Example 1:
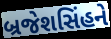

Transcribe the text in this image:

બ્રજેશસિંહને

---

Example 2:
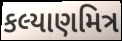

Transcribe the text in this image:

કલ્યાણમિત્ર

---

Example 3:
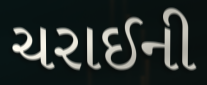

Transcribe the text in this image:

ચરાઈની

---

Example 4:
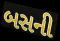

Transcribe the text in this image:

બસની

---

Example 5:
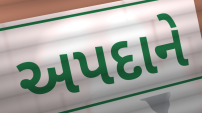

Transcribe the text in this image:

અપદાને